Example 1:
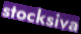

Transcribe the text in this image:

stocksiva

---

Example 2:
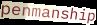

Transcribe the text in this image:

penmanship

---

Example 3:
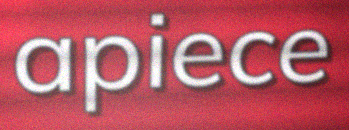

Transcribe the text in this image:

apiece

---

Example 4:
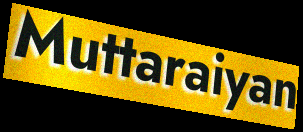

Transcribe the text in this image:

Muttaraiyan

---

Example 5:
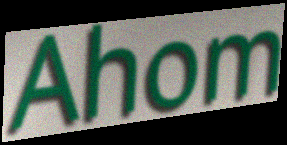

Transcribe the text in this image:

Ahom